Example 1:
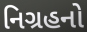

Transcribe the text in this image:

નિગ્રહનો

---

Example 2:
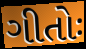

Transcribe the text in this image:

ગીતોઃ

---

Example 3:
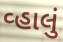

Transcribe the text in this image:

વ્હાલું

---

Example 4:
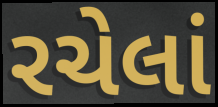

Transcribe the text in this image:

રચેલાં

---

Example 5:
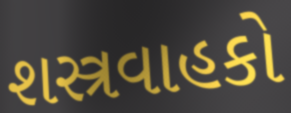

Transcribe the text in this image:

શસ્ત્રવાહકો